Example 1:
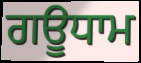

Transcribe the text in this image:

ਗਊਧਾਮ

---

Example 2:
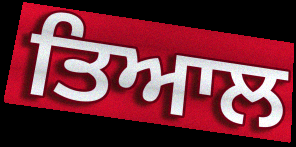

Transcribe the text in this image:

ਤਿਆਲ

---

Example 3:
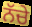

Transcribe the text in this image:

ਨੱਚੇ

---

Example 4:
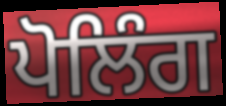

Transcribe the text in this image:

ਪੋਲਿੰਗ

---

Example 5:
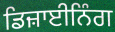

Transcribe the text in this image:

ਡਿਜ਼ਾਈਨਿੰਗ